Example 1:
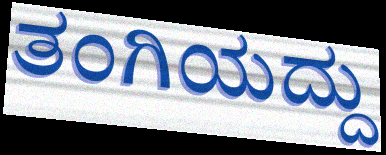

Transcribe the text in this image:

ತಂಗಿಯದ್ದು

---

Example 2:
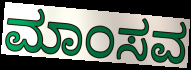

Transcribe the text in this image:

ಮಾಂಸವ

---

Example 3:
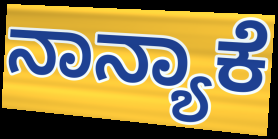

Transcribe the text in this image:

ನಾನ್ಯಾಕೆ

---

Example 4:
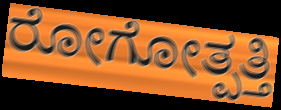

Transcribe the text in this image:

ರೋಗೋತ್ಪತ್ತಿ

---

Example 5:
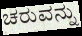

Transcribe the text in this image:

ಚರುವನ್ನು